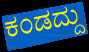
ಕಂಡದ್ದು